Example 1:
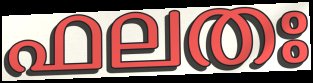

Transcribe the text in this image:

ഫലതഃ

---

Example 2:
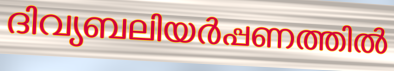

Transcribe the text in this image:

ദിവ്യബലിയർപ്പണത്തിൽ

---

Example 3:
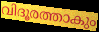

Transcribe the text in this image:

വിദൂരത്താകും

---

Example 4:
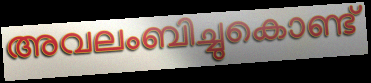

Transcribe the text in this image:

അവലംബിച്ചുകൊണ്ട്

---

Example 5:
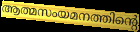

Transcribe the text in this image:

ആത്മസംയമനത്തിന്റെ